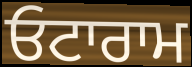
ਓਟਾਰਾਮ